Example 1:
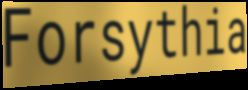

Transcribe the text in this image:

Forsythia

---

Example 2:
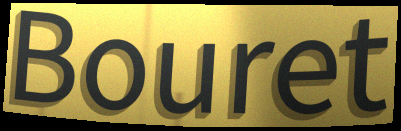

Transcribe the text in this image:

Bouret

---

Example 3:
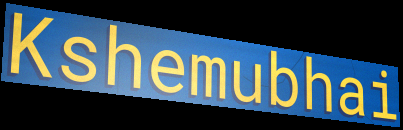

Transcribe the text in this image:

Kshemubhai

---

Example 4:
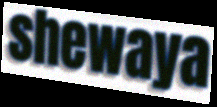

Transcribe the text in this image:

shewaya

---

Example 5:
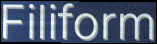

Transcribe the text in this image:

Filiform